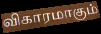
விகாரமாகும்